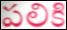
పలికి